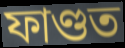
ফাণ্ডত